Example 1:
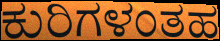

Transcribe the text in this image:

ಕುರಿಗಳಂತಹ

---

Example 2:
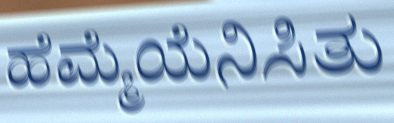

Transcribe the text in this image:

ಹೆಮ್ಮೆಯೆನಿಸಿತು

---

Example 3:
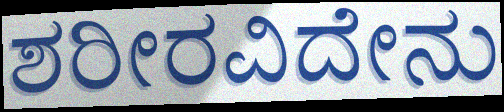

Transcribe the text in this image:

ಶರೀರವಿದೇನು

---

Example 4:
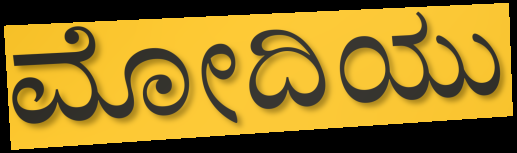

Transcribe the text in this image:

ಮೋದಿಯು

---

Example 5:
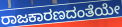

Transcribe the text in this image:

ರಾಜಕಾರಣದಂತೆಯೇ